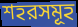
শহরসমূহ